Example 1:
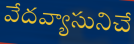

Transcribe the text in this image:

వేదవ్యాసునిచే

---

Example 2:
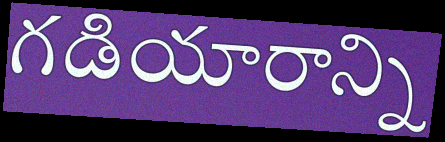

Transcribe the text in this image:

గడియారాన్ని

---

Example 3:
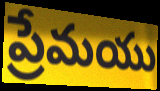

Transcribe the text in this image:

ప్రేమయు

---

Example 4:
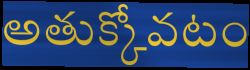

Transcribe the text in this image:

అతుక్కోవటం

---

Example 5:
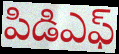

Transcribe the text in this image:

పిడిఎఫ్